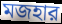
মজহার